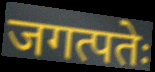
जगत्पतेः